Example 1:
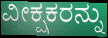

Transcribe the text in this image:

ವೀಕ್ಷಕರನ್ನು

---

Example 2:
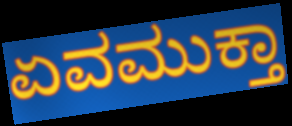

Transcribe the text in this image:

ಏವಮುಕ್ತಾ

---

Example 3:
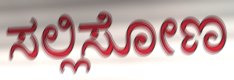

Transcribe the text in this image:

ಸಲ್ಲಿಸೋಣ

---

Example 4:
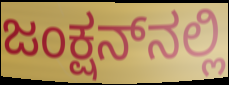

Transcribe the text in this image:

ಜಂಕ್ಷನ್‌ನಲ್ಲಿ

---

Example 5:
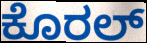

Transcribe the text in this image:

ಕೊರಲ್